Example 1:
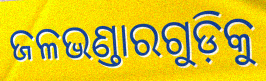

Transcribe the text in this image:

ଜଳଭଣ୍ଡାରଗୁଡ଼ିକୁ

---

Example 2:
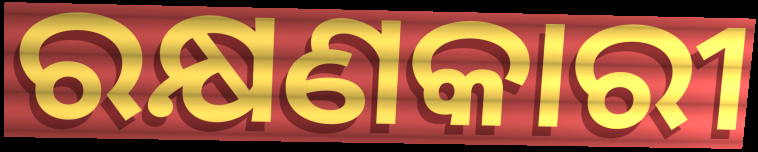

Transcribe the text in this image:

ରକ୍ଷଣକାରୀ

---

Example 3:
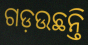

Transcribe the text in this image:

ଗଡ଼ଉଛନ୍ତି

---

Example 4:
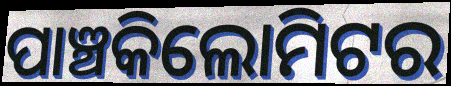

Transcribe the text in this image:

ପାଞ୍ଚକିଲୋମିଟର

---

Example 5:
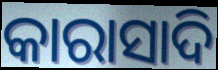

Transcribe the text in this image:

କାରାସାଦି